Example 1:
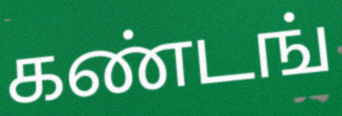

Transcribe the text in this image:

கண்டங்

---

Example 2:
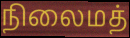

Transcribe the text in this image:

நிலைமத்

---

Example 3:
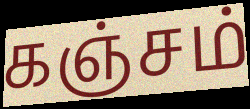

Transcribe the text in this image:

கஞ்சம்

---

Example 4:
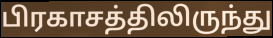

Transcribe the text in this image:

பிரகாசத்திலிருந்து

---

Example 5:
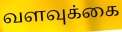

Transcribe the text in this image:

வளவுக்கை